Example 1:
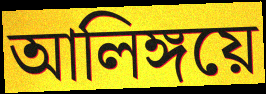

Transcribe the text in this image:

আলিঙ্গয়ে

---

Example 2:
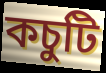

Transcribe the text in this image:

কচুটি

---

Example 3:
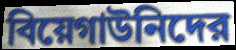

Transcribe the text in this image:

বিয়েগাউনিদের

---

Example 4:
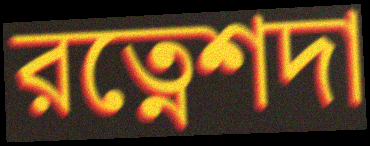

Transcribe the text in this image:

রত্নেশদা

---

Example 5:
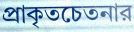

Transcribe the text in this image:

প্রাকৃতচেতনার